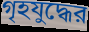
গৃহযুদ্ধের